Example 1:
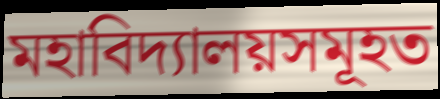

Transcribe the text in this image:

মহাবিদ্যালয়সমূহত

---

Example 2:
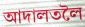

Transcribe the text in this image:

আদালতলৈ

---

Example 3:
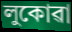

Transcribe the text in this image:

লুকোৱা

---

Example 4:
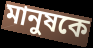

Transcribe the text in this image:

মানুষকে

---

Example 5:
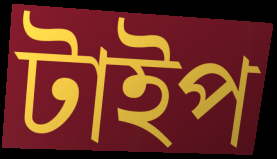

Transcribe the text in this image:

টাইপ